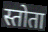
स्तोता